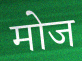
मोज